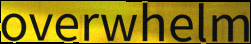
overwhelm